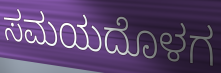
ಸಮಯದೊಳಗ